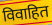
विवाहित